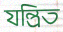
যন্ত্রিত